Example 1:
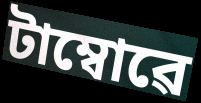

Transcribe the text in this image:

টাম্বোৱে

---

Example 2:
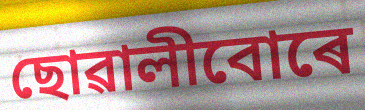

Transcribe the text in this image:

ছোৱালীবোৰে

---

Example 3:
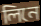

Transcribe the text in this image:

লিনে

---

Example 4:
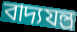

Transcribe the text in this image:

বাদ্যযন্ত্ৰ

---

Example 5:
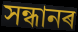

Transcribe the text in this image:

সন্ধানৰ